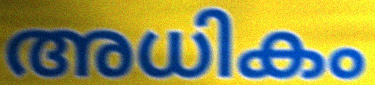
അധികം